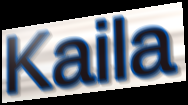
Kaila